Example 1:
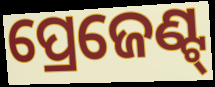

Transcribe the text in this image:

ପ୍ରେଜେଣ୍ଟ୍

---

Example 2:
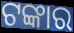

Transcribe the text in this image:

ଟଙ୍କାର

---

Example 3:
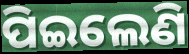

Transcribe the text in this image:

ପିଇଲେଣି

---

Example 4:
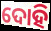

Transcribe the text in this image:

ଦୋହି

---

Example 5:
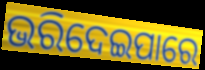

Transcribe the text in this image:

ଭରିଦେଇପାରେ